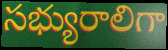
సభ్యురాలిగా